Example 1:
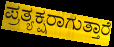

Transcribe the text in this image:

ಪ್ರತ್ಯಕ್ಷರಾಗುತ್ತಾರೆ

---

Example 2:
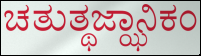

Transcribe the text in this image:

ಚತುತ್ಥಜ್ಝಾನಿಕಂ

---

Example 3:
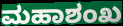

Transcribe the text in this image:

ಮಹಾಶಂಖ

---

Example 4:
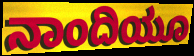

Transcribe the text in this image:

ನಾಂದಿಯೂ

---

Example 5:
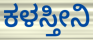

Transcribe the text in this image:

ಕಳಸ್ತೀನಿ